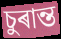
চুৰান্ত